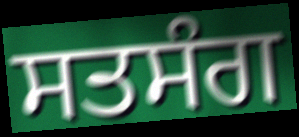
ਸਤਸੰਗ